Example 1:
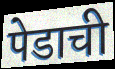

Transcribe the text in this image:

पेडाची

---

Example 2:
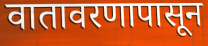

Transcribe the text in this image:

वातावरणापासून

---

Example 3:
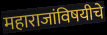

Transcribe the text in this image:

महाराजांविषयीचे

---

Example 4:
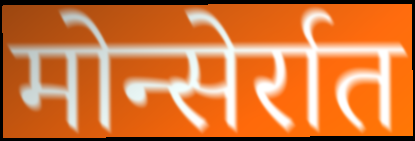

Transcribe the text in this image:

मोन्सेर्रात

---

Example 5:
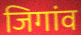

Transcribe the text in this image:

जिगांव